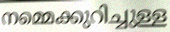
നമ്മെക്കുറിച്ചുള്ള